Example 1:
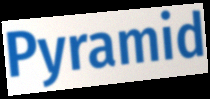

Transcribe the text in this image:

Pyramid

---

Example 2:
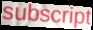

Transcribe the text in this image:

subscript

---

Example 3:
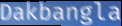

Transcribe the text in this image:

Dakbangla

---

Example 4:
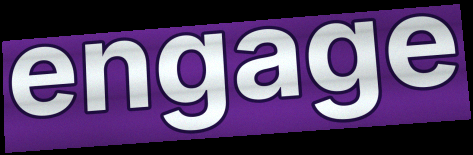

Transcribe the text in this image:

engage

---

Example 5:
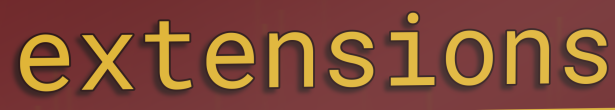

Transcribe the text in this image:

extensions